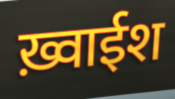
ख़्वाईश